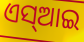
ଏସ୍ଆଇ